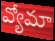
వ్యోమా